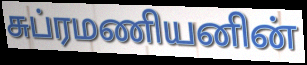
சுப்ரமணியனின்